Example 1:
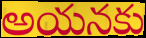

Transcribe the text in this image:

అయనకు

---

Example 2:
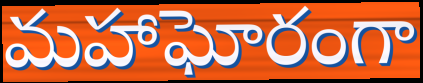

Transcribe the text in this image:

మహాఘోరంగా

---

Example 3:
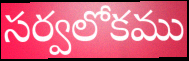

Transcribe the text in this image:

సర్వలోకము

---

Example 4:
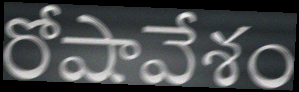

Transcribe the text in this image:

రోషావేశం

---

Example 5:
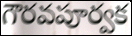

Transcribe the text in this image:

గౌరవపూర్వక